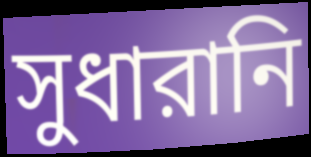
সুধারানি